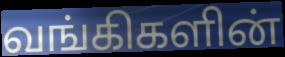
வங்கிகளின்